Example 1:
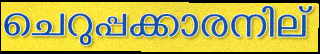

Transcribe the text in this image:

ചെറുപ്പക്കാരനില്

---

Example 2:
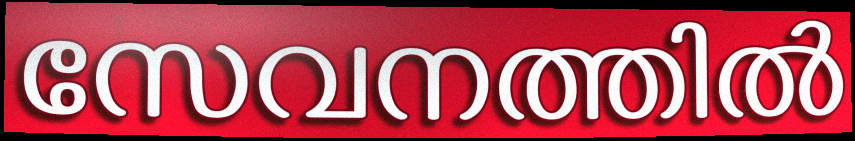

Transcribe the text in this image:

സേവനത്തിൽ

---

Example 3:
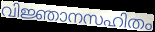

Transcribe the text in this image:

വിജ്ഞാനസഹിതം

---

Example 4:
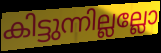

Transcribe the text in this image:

കിട്ടുന്നില്ലല്ലോ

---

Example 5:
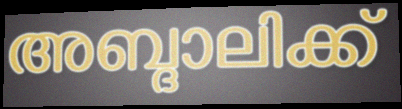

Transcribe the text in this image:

അബ്ദാലിക്ക്